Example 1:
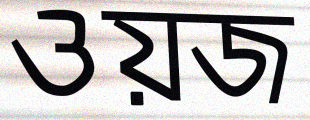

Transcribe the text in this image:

ওয়জ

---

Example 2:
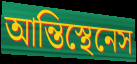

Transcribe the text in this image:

আন্তিস্থেনেস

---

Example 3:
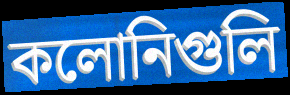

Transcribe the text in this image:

কলোনিগুলি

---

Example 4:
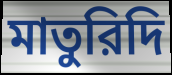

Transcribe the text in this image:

মাতুরিদি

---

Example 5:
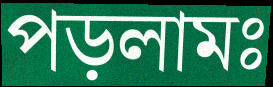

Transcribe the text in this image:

পড়লামঃ